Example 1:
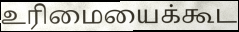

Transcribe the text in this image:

உரிமையைக்கூட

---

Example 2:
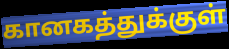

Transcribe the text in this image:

கானகத்துக்குள்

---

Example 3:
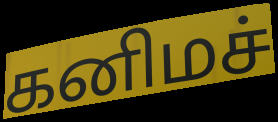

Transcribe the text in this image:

கனிமச்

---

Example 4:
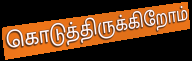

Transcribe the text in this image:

கொடுத்திருக்கிறோம்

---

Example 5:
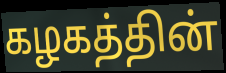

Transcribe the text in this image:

கழகத்தின்